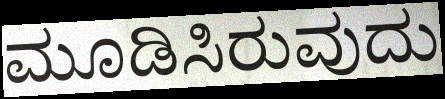
ಮೂಡಿಸಿರುವುದು